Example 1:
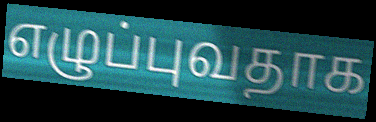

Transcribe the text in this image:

எழுப்புவதாக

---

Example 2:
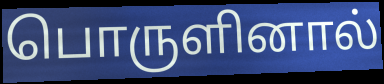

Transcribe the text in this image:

பொருளினால்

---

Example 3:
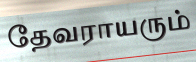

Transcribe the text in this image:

தேவராயரும்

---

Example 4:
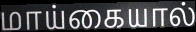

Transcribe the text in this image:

மாய்கையால்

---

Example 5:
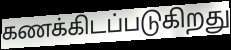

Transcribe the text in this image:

கணக்கிடப்படுகிறது